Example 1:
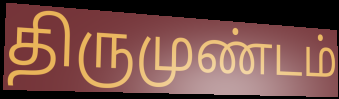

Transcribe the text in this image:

திருமுண்டம்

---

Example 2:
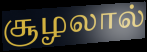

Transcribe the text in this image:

சூழலால்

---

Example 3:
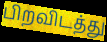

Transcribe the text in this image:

பிறவிடத்து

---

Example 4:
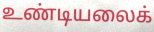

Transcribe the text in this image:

உண்டியலைக்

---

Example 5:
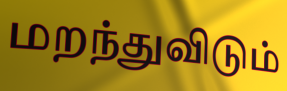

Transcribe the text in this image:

மறந்துவிடும்